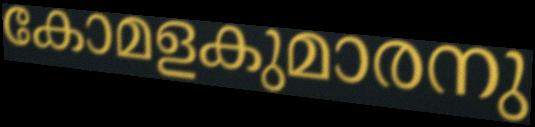
കോമളകുമാരനു